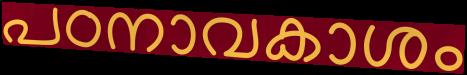
പഠനാവകാശം